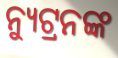
ନ୍ୟୁଟ୍ରନଙ୍କ